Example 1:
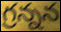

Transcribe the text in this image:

గ్రన్నన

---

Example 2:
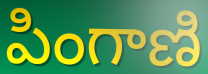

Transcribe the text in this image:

పింగాణి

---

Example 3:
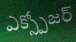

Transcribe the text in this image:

ఎక్స్పోజర్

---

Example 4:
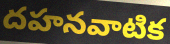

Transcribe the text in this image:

దహనవాటిక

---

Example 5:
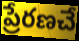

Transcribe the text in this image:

ప్రేరణచే